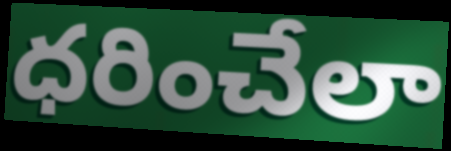
ధరించేలా